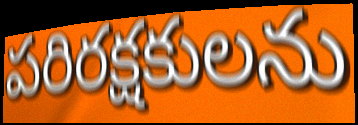
పరిరక్షకులను